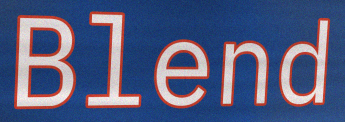
Blend